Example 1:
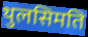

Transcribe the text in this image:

थुलसिमति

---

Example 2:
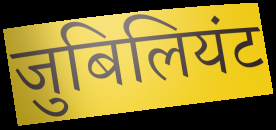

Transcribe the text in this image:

जुबिलियंट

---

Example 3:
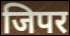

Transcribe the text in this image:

जिपर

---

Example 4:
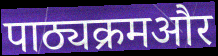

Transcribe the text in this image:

पाठ्यक्रमऔर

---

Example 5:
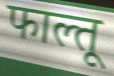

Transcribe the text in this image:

फाल्तू